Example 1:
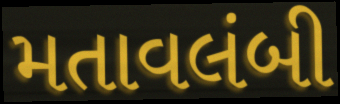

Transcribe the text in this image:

મતાવલંબી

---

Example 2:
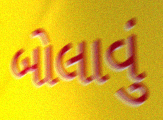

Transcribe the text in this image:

બોલાવું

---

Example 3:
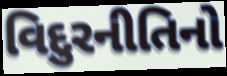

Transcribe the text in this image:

વિદુરનીતિનો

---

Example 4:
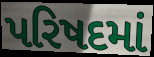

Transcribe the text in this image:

પરિષદમાં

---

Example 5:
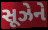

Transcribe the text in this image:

સૂઝેને